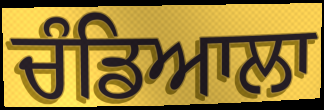
ਚੰਡਿਆਲਾ